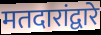
मतदारांद्वारे